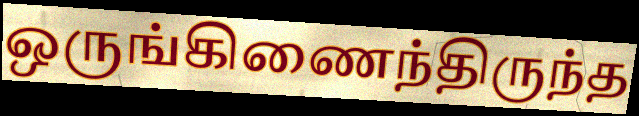
ஒருங்கிணைந்திருந்த